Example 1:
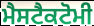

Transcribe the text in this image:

ਮੈਸਟੈਕਟੋਮੀ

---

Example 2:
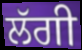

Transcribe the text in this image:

ਲੱਗੀ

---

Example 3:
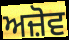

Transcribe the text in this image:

ਅਜ਼ੋਵ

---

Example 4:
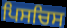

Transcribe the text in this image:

ਪਿਸਚਿਸ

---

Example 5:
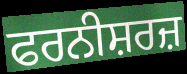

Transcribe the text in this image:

ਫਰਨੀਸ਼ਰਜ਼